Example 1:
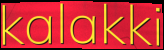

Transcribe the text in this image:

kalakki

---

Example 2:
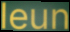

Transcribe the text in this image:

leun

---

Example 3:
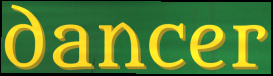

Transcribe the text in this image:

dancer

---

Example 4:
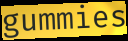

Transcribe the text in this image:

gummies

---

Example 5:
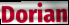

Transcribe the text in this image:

Dorian